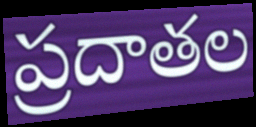
ప్రదాతల